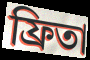
ফ্রিতা